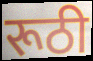
रूठी